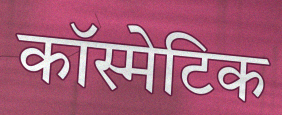
कॉस्मेटिक